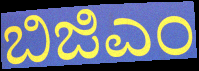
ಬಿಜಿಎಂ